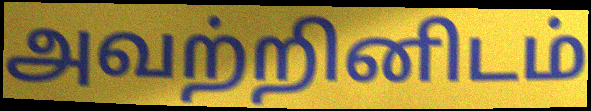
அவற்றினிடம்